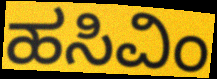
ಹಸಿವಿಂ